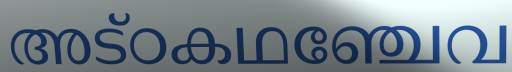
അട്ഠകഥഞ്ചേവ